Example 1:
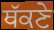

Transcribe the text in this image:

ਥੱਕਣੇ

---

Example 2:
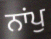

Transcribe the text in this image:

ਨਾਂਪੁ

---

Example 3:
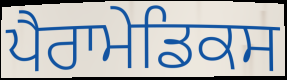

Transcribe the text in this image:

ਪੈਰਾਮੇਡਿਕਸ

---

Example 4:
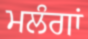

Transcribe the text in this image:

ਮਲੰਗਾਂ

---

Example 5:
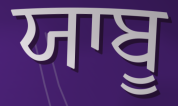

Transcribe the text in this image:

ਯਾਬੂ